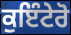
ਕੁਇੰਟੇਰੋ